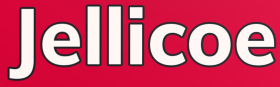
Jellicoe